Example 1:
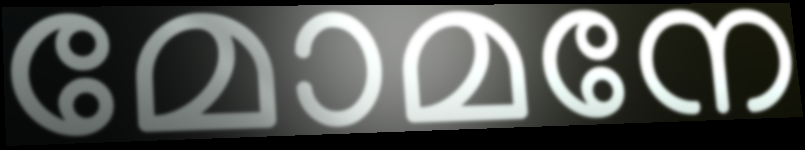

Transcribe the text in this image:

മോമനേ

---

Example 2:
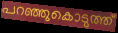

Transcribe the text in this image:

പറഞ്ഞുകൊടുത്ത്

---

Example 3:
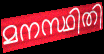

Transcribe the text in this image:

മനസ്ഥിതി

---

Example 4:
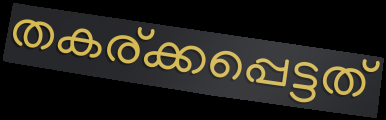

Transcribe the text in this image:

തകര്ക്കപ്പെട്ടത്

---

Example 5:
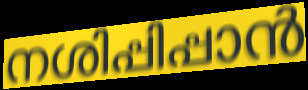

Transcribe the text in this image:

നശിപ്പിപ്പാൻ